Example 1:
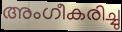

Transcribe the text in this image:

അംഗീകരിച്ചു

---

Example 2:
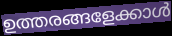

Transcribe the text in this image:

ഉത്തരങ്ങളേക്കാൾ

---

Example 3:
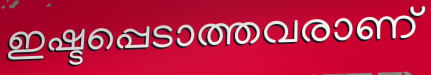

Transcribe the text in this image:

ഇഷ്ടപ്പെടാത്തവരാണ്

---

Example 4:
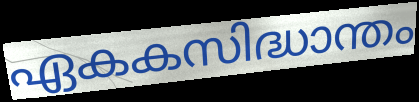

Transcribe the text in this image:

ഏകകസിദ്ധാന്തം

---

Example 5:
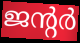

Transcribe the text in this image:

ജന്റർ